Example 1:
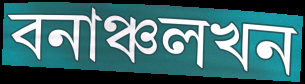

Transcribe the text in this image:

বনাঞ্চলখন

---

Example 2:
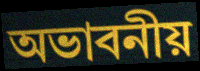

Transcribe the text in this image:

অভাবনীয়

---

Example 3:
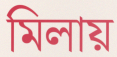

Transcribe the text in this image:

মিলায়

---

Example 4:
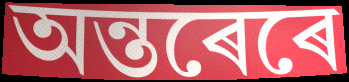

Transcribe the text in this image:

অন্তৰেৰে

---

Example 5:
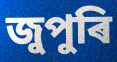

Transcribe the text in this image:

জুপুৰি